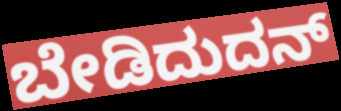
ಬೇಡಿದುದನ್